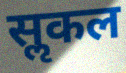
सॢकल